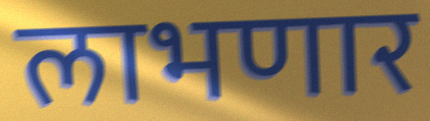
लाभणार